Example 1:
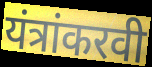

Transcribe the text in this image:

यंत्रांकरवी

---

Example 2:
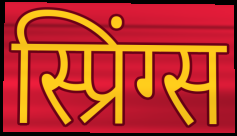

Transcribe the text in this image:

स्प्रिंग्स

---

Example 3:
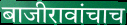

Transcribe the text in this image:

बाजीरावांचाच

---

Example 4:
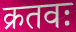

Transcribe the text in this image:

क्रतवः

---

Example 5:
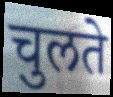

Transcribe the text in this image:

चुलते